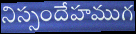
నిస్సందేహముగ